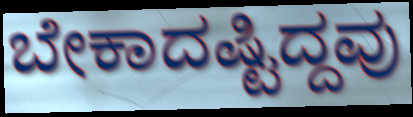
ಬೇಕಾದಷ್ಟಿದ್ದವು